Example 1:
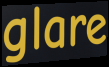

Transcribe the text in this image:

glare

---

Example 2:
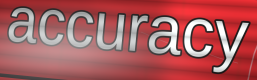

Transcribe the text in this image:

accuracy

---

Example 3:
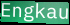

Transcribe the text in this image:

Engkau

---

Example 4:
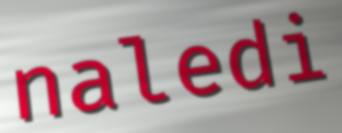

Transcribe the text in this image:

naledi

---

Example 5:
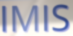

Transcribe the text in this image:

IMIS